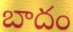
బాదం